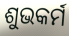
ଶୁଭକର୍ମ